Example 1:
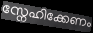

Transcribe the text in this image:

സ്നേഹിക്കേണം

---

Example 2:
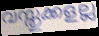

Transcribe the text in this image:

വസ്തുക്കളല്ല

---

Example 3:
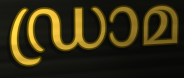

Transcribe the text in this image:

ഡ്രാമ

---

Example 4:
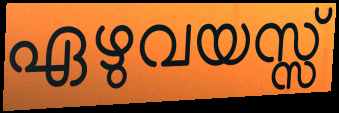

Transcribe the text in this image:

ഏഴുവയസ്സ്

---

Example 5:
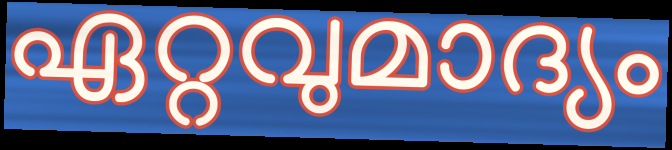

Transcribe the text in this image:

ഏറ്റവുമാദ്യം